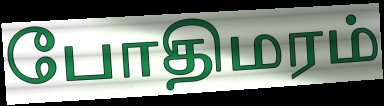
போதிமரம்